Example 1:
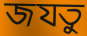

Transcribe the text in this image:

জযতু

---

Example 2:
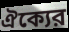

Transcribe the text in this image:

ঐক্যের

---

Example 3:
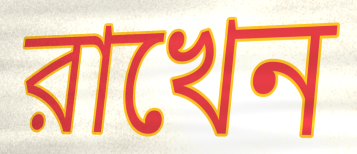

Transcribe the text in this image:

রাখেন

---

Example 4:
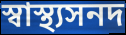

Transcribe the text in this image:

স্বাস্থ্যসনদ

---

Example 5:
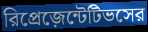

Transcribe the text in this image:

রিপ্রেজ়েন্টেটিভসের